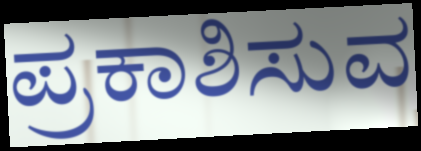
ಪ್ರಕಾಶಿಸುವ